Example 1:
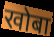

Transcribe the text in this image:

खोबा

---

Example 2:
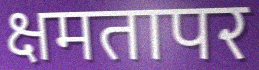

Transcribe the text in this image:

क्षमतापर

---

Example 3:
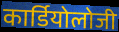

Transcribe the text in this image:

कार्डियोलोजी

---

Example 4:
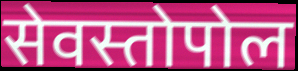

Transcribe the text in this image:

सेवस्तोपोल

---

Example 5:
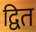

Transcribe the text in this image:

द्वित